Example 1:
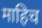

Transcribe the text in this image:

माहिच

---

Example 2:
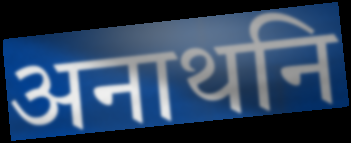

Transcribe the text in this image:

अनाथनि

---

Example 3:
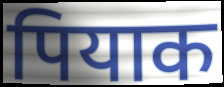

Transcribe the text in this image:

पियाक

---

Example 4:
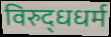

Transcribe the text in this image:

विरुद्धधर्म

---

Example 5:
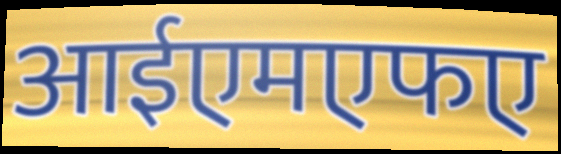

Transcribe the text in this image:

आईएमएफए